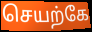
செயற்கே